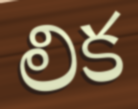
లిక